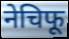
नेचिफू